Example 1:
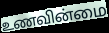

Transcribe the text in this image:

உணவின்மை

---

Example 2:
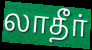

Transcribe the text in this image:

லாதீர்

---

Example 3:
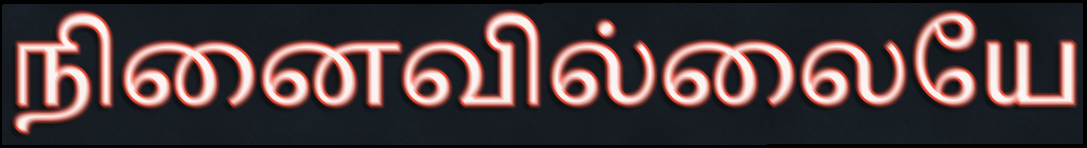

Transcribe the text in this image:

நினைவில்லையே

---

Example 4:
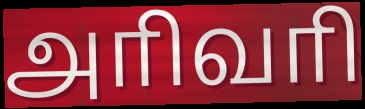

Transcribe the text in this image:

அரிவரி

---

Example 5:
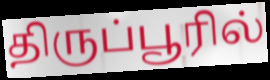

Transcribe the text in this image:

திருப்பூரில்